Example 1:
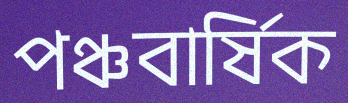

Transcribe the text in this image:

পঞ্চবার্ষিক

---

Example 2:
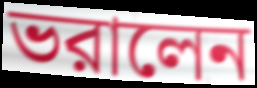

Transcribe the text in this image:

ভরালেন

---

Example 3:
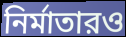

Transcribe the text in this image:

নির্মাতারও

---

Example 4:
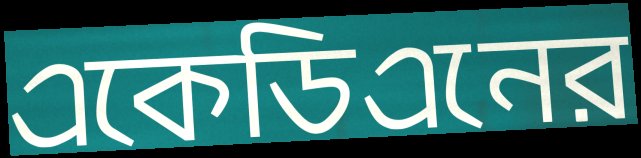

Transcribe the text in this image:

একেডিএনের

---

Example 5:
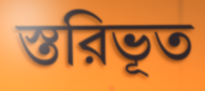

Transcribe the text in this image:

স্তরিভূত